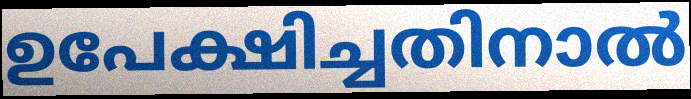
ഉപേക്ഷിച്ചതിനാൽ